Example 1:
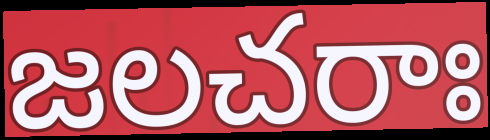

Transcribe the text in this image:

జలచరాః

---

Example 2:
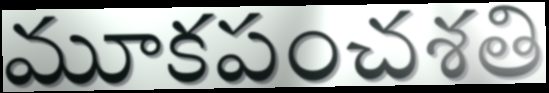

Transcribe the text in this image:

మూకపంచశతి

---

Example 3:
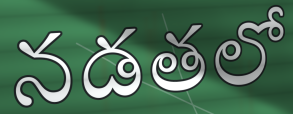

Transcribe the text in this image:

నడతలో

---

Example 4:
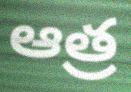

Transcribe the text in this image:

ఆత్ర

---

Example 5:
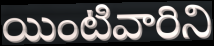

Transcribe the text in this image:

యింటివారిని